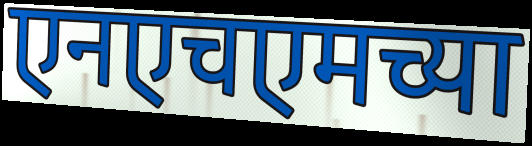
एनएचएमच्या